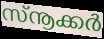
സ്നൂക്കർ